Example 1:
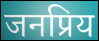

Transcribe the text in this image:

जनप्रिय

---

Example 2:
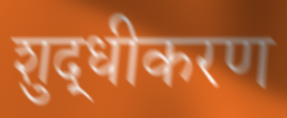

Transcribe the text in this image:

शुद्धीकरण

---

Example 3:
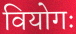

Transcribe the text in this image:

वियोगः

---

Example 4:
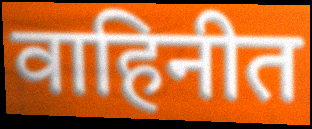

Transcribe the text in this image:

वाहिनीत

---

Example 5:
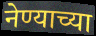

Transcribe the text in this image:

नेण्याच्या